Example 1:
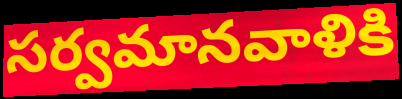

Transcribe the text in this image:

సర్వమానవాళికి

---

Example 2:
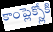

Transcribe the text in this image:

కాంప్లెక్స్లోకి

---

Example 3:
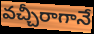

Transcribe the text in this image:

వచ్చీరాగానే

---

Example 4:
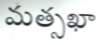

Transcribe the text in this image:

మత్సఖా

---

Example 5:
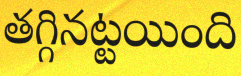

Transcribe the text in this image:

తగ్గినట్టయింది